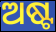
ଅଷ୍ଟ